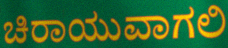
ಚಿರಾಯುವಾಗಲಿ